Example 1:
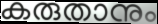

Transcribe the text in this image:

കരുതാനും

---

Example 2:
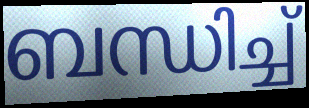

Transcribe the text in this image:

ബന്ധിച്ച്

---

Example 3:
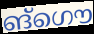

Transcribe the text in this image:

ങ്ഗൌ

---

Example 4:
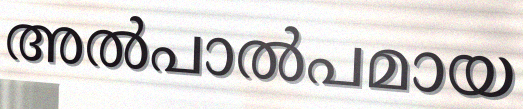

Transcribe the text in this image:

അൽപാൽപമായ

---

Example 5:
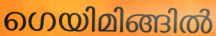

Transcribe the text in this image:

ഗെയിമിങ്ങിൽ